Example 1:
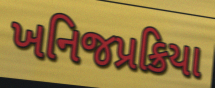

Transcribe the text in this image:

ખનિજપ્રક્રિયા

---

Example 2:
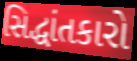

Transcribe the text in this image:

સિદ્ધાંતકારો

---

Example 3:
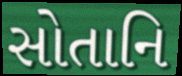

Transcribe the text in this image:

સોતાનિ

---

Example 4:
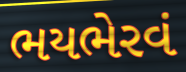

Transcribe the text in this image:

ભયભેરવં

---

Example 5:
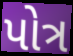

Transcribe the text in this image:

પોત્ર